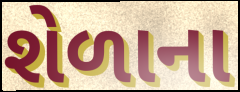
શેળાના